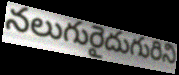
నలుగురైదుగురిని